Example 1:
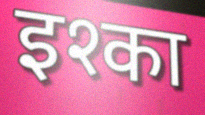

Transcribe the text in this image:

इश्का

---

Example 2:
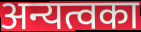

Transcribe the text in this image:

अन्यत्वका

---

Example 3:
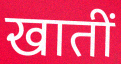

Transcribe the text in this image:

खातीं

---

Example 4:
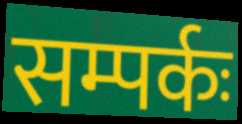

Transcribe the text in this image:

सम्पर्कः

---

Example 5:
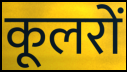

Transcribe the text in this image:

कूलरों